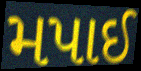
મપાઈ